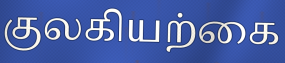
குலகியற்கை